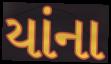
યાંના